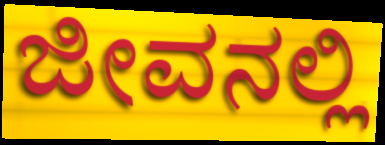
ಜೀವನಲ್ಲಿ